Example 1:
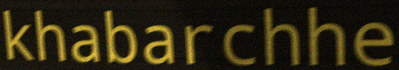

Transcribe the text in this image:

khabarchhe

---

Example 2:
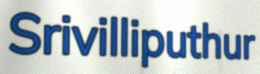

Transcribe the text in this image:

Srivilliputhur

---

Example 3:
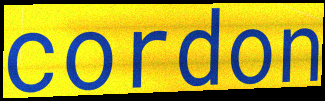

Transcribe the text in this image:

cordon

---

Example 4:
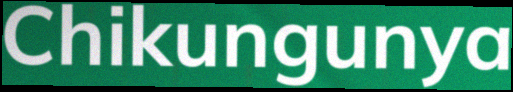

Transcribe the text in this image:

Chikungunya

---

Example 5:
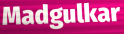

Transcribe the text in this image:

Madgulkar